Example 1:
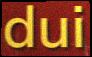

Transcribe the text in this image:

dui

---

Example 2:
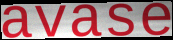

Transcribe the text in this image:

avase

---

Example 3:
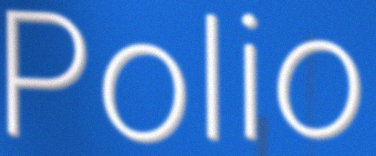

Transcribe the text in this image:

Polio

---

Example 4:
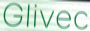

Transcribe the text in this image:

Glivec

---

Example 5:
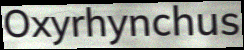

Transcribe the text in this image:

Oxyrhynchus